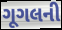
ગૂગલની